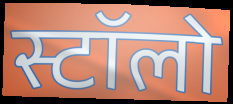
स्टॉलो